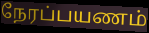
நேரப்பயணம்